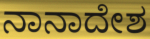
ನಾನಾದೇಶ